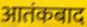
आतंकबाद